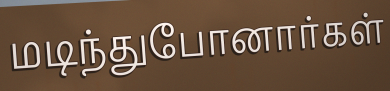
மடிந்துபோனார்கள்